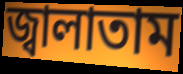
জ্বালাতাম